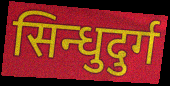
सिन्धुदुर्ग